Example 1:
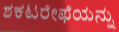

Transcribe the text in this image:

ಶಕಟರೇಫೆಯನ್ನು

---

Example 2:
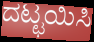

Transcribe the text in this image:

ದಟ್ಟಯಿಸಿ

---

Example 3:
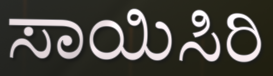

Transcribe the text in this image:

ಸಾಯಿಸಿರಿ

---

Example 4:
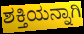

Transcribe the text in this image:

ಶಕ್ತಿಯನ್ನಾಗಿ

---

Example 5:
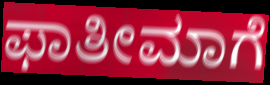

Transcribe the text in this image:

ಫಾತೀಮಾಗೆ